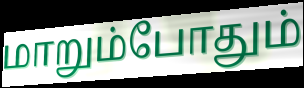
மாறும்போதும்